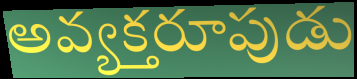
అవ్యక్తరూపుడు